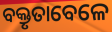
ବକ୍ତୃତାବେଳେ